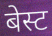
बेस्ट